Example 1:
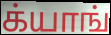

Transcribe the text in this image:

க்யாங்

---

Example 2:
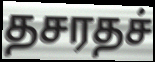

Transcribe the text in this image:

தசரதச்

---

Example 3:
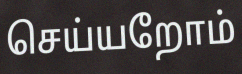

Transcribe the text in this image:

செய்யறோம்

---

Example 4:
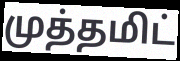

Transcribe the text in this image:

முத்தமிட்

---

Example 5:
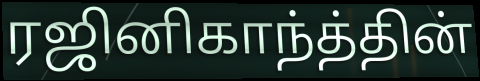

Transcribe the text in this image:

ரஜினிகாந்த்தின்